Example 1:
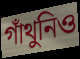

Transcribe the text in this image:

গাঁথুনিও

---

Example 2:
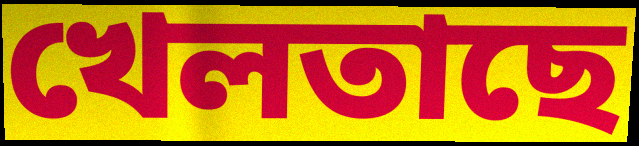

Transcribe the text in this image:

খেলতাছে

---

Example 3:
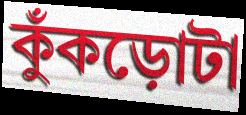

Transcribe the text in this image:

কুঁকড়োটা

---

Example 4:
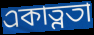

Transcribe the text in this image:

একাত্নতা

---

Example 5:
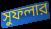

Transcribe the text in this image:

সুফলার